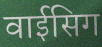
वाईसिग